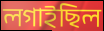
লগাইছিল